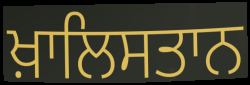
ਖ਼ਾਲਿਸਤਾਨ